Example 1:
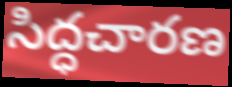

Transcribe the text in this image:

సిద్ధచారణ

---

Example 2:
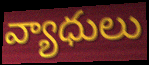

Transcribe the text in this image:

వ్యాధులు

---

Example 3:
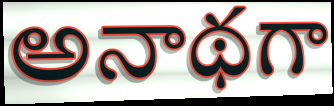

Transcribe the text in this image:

అనాథగా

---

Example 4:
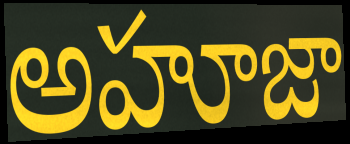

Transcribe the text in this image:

అహూజా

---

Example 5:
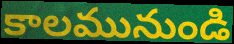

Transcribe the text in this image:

కాలమునుండి